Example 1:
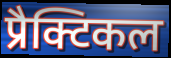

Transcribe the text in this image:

प्रैक्टिकल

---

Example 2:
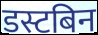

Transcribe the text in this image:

डस्टबिन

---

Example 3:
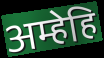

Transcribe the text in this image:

अम्हेहि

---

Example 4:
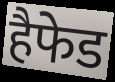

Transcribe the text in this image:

हैफेड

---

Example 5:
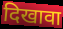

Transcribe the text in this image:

दिखावा